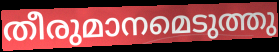
തീരുമാനമെടുത്തു